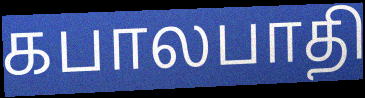
கபாலபாதி